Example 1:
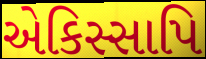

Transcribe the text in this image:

એકિસ્સાપિ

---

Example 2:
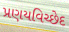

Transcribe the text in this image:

પ્રણયવિચ્છેદ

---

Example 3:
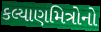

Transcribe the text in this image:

કલ્યાણમિત્રોનો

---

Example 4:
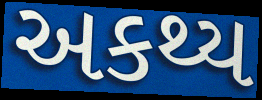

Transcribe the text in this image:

અકથ્ય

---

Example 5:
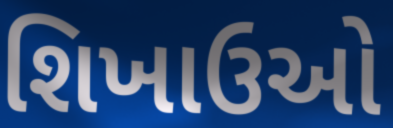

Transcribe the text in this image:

શિખાઉઓ